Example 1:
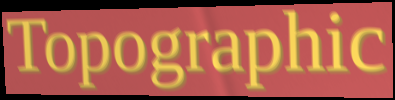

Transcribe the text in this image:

Topographic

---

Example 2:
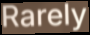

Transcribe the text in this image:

Rarely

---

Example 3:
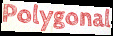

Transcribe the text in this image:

Polygonal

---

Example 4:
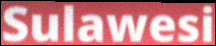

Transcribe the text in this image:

Sulawesi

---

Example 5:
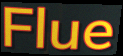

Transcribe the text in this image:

Flue